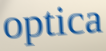
optica